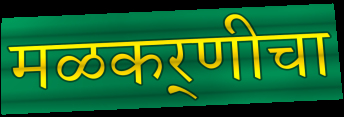
मळकर्णीचा